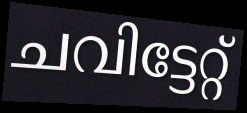
ചവിട്ടേറ്റ്